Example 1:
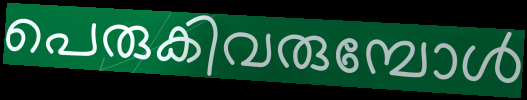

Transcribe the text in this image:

പെരുകിവരുമ്പോൾ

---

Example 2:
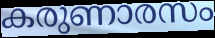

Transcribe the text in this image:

കരുണാരസം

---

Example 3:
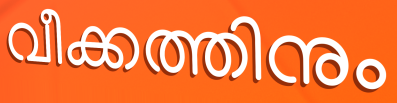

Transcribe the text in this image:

വീക്കത്തിനും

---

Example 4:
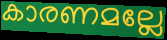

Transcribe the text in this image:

കാരണമല്ലേ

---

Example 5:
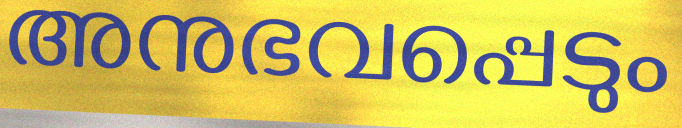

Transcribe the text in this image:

അനുഭവപ്പെടും